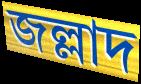
জল্লাদ